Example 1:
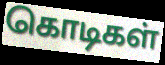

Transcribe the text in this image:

கொடிகள்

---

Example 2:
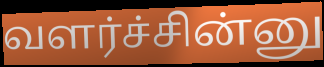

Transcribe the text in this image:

வளர்ச்சின்னு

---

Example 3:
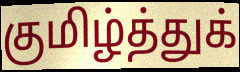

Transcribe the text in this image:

குமிழ்த்துக்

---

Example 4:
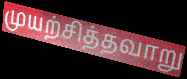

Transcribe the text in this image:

முயற்சித்தவாறு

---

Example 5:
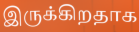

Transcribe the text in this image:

இருக்கிறதாக